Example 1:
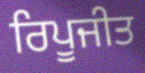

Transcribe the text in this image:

ਰਿਪੂਜੀਤ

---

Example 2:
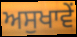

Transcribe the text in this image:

ਅਸੁਖਾਵੇਂ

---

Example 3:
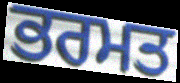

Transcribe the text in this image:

ਭਰਮਤ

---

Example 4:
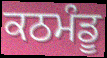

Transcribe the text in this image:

ਕਠਮੰਡੂ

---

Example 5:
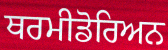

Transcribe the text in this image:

ਥਰਮੀਡੋਰਿਅਨ